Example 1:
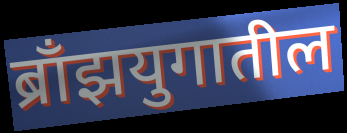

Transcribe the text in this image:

ब्राँझयुगातील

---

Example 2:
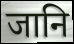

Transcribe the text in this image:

जानि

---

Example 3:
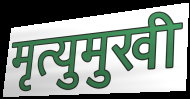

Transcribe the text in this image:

मृत्युमुखी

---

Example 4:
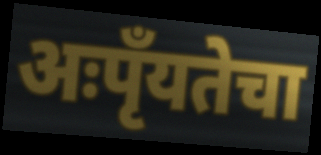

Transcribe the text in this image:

अःपृँयतेचा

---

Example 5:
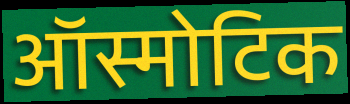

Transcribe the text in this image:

ऑस्मोटिक